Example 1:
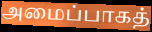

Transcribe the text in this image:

அமைப்பாகத்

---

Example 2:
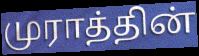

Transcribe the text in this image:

முராத்தின்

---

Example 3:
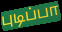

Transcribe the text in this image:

புடிப்பா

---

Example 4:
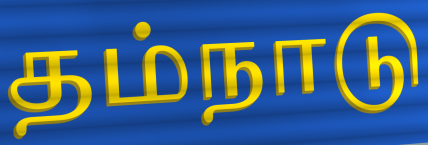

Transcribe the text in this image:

தம்நாடு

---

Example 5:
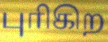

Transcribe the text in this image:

புரிகிற